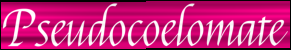
Pseudocoelomate